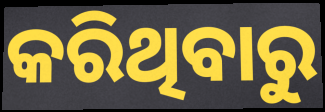
କରିଥିବାରୁ